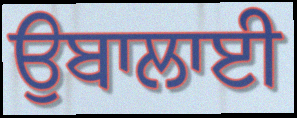
ਉਬਾਲਾਈ